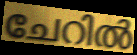
ചേറിൽ